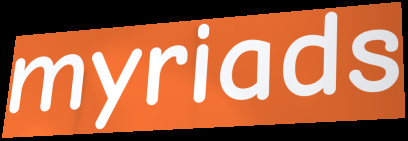
myriads